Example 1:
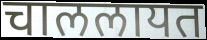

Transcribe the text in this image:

चाललायत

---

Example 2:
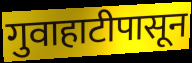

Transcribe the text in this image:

गुवाहाटीपासून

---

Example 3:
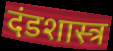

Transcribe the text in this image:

दंडशास्त्र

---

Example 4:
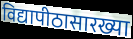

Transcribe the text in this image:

विद्यापीठासारख्या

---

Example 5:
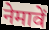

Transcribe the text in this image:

नेमावें